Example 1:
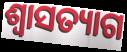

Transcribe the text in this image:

ଶ୍ବାସତ୍ୟାଗ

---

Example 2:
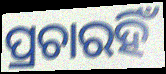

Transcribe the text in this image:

ପ୍ରଚାରହିଁ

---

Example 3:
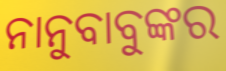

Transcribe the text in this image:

ନାନୁବାବୁଙ୍କର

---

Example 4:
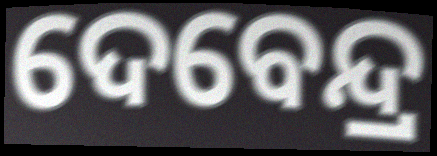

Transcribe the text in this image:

ଦେବେନ୍ଦ୍ର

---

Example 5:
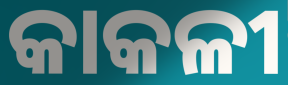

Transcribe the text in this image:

କାକଳୀ